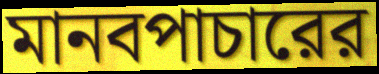
মানবপাচারের